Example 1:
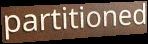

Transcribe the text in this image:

partitioned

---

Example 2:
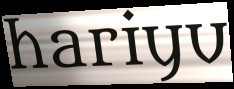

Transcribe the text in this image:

hariyu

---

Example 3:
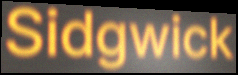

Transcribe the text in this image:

Sidgwick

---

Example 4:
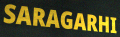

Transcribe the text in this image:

SARAGARHI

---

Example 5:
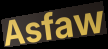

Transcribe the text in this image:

Asfaw